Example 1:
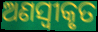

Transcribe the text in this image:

ଅଣସ୍ୱୀକୃତ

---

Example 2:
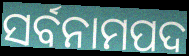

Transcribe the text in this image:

ସର୍ବନାମପଦ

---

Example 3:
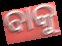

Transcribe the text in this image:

ବାକୁ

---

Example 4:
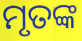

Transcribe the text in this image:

ମୃତଙ୍କ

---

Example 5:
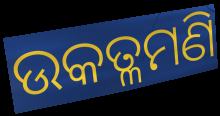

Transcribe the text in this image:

ଉକତ୍ଳମଣି